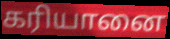
கரியானை